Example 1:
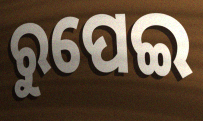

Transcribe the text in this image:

ରୁପେଇ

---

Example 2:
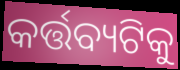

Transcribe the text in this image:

କର୍ତ୍ତବ୍ୟଟିକୁ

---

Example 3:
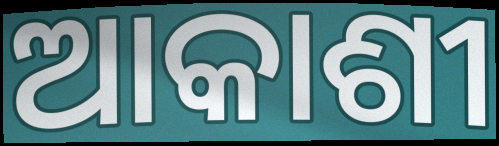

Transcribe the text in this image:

ଆକାଶୀ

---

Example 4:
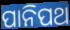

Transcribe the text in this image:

ପାନିପଥ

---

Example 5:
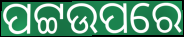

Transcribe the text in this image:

ପଟ୍ଟଉପରେ